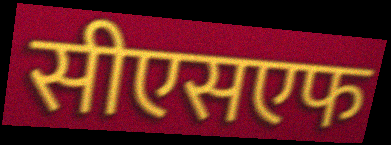
सीएसएफ